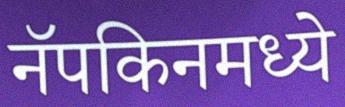
नॅपकिनमध्ये